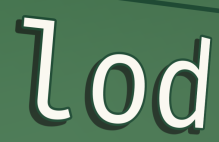
lod